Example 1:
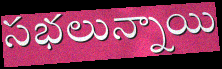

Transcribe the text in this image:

సభలున్నాయి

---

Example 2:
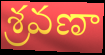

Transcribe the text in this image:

శ్రవణా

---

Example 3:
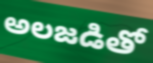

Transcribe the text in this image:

అలజడితో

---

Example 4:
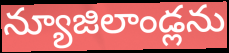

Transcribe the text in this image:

న్యూజిలాండ్లను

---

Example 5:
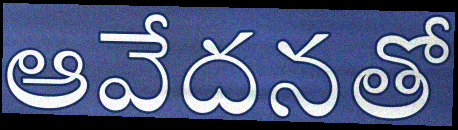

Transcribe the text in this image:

ఆవేదనతో